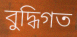
বুদ্ধিগত